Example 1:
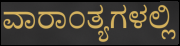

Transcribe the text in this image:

ವಾರಾಂತ್ಯಗಳಲ್ಲಿ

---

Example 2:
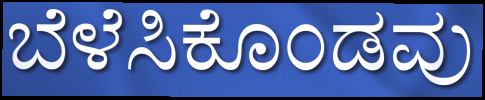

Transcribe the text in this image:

ಬೆಳೆಸಿಕೊಂಡವು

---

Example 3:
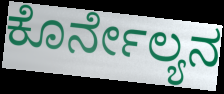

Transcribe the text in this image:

ಕೊರ್ನೇಲ್ಯನ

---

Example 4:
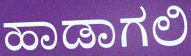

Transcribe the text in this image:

ಹಾಡಾಗಲಿ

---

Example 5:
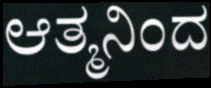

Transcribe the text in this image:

ಆತ್ಮನಿಂದ